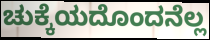
ಚುಕ್ಕೆಯದೊಂದನೆಲ್ಲ